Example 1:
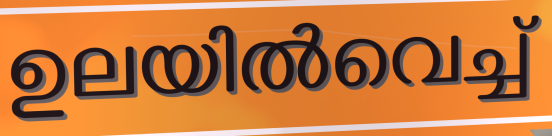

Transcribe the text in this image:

ഉലയിൽവെച്ച്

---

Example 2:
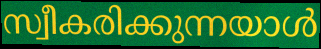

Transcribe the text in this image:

സ്വീകരിക്കുന്നയാൾ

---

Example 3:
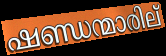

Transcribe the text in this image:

ഷണ്ഡന്മാരില്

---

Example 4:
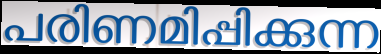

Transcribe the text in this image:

പരിണമിപ്പിക്കുന്ന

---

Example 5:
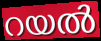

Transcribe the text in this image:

റയൽ